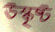
উস্কৃষ্ট